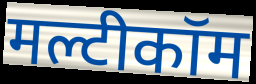
मल्टीकॉम